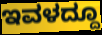
ಇವಳದ್ದೂ